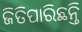
ଜିତିପାରିଛନ୍ତି